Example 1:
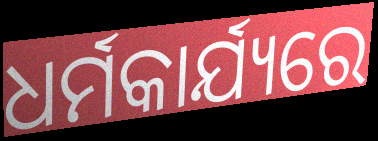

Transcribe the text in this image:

ଧର୍ମକାର୍ଯ୍ୟରେ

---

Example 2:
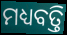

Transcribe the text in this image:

ମଧ୍ୟବତ୍ତି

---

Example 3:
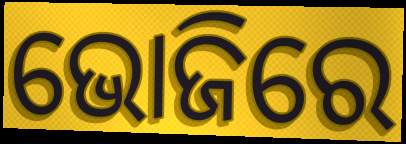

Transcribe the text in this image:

ଭୋଜିରେ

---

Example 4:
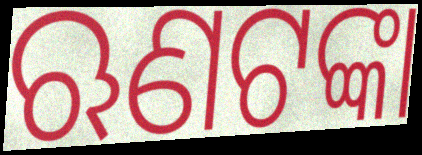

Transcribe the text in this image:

ଋଣଟଙ୍କା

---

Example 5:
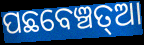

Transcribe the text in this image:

ପଛବେଞ୍ଚତ୍ଆ